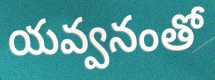
యవ్వనంతో